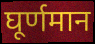
घूर्णमान